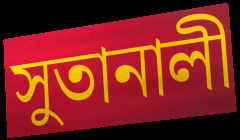
সুতানালী